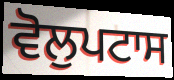
ਵੋਲੁਪਟਾਸ